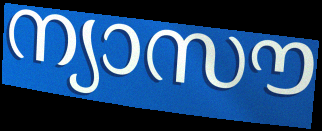
ന്യാസൗ